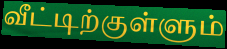
வீட்டிற்குள்ளும்